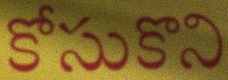
కోసుకొని